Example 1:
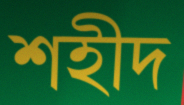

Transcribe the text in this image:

শহীদ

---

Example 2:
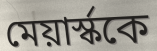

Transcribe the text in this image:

মেয়ার্স্ককে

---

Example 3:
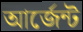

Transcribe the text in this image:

আর্জেন্ট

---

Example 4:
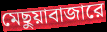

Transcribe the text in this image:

মেছুয়াবাজারে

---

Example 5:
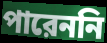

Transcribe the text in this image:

পারেননি